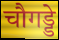
चौगड्डे